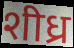
शीध्र